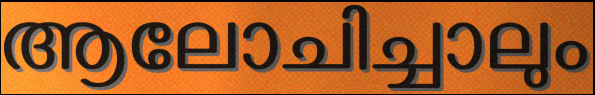
ആലോചിച്ചാലും